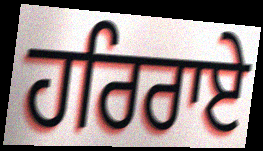
ਹਰਿਰਾਏ